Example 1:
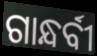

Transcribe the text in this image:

ଗାନ୍ଧର୍ବୀ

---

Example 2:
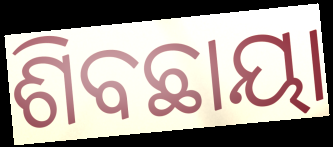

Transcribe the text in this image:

ଶିବଛାୟା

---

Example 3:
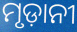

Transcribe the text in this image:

ମୃଡ଼ାନୀ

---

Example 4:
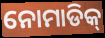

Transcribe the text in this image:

ନୋମାଡିକ୍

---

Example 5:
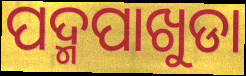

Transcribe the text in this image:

ପଦ୍ମପାଖୁଡା